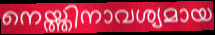
നെയ്ത്തിനാവശ്യമായ